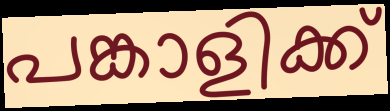
പങ്കാളിക്ക്